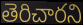
తెరిచారని